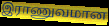
இராணுவமான